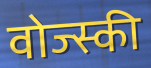
वोज्स्की